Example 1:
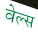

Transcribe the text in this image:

वेल्स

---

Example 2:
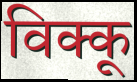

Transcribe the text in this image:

विक्कू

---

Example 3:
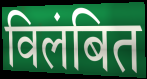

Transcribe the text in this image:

विलंबित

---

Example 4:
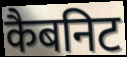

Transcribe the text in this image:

कैबनिट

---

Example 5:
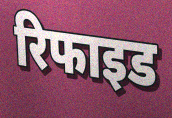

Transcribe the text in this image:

रिफाइड